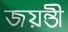
জয়ন্তী